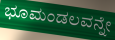
ಭೂಮಂಡಲವನ್ನೇ